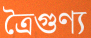
ত্রৈগুণ্য